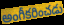
అంగీకరించడు